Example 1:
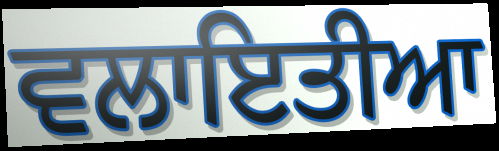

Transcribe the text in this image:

ਵਲਾਇਤੀਆ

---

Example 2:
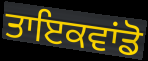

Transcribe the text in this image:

ਤਾਇਕਵਾਂਡੋ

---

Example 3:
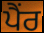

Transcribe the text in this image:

ਪੈਂਰ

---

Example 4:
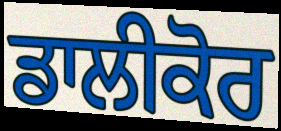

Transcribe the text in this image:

ਡਾਲੀਕੋਰ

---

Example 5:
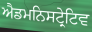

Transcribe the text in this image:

ਐਡਮਨਿਸਟ੍ਰੇਟਿਵ